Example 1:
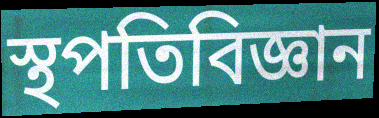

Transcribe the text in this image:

স্থপতিবিজ্ঞান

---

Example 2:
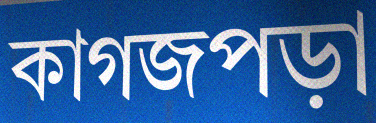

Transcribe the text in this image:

কাগজপড়া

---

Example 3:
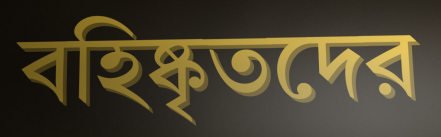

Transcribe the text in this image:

বহিষ্কৃতদের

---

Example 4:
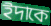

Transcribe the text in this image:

ইদাকে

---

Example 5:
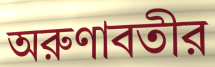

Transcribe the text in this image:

অরুণাবতীর